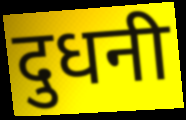
दुधनी